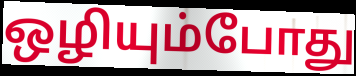
ஒழியும்போது